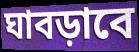
ঘাবড়াবে